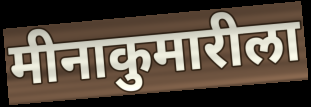
मीनाकुमारीला